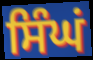
ਸਿੰਘਂ